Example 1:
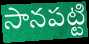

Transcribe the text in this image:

సానపట్టి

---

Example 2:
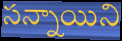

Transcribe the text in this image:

సన్నాయిని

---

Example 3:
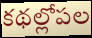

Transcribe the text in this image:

కథల్లోపల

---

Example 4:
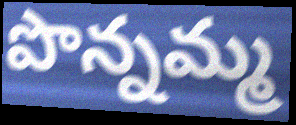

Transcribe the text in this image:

పొన్నమ్మ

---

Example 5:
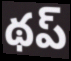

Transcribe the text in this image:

థప్